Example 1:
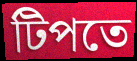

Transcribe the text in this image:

টিপতে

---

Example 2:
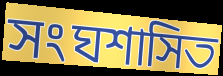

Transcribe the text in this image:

সংঘশাসিত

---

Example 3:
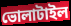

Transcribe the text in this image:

ভোলাটাইল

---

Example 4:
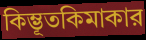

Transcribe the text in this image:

কিম্ভূতকিমাকার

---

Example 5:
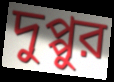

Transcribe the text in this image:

দুপ্পুর